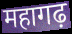
महागढ़